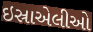
ઇસ્રાએલીઓ